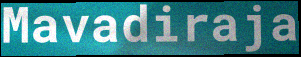
Mavadiraja